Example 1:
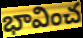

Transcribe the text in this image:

భావించ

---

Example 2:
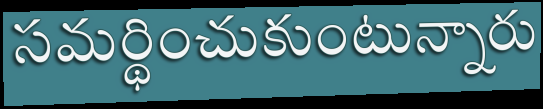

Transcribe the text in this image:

సమర్థించుకుంటున్నారు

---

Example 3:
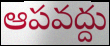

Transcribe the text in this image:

ఆపవద్దు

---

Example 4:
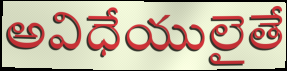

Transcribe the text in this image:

అవిధేయులైతే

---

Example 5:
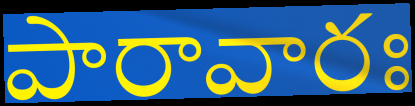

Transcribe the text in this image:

పారావారః